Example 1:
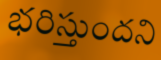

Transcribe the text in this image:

భరిస్తుందని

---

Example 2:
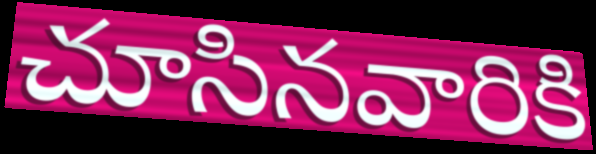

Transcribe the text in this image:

చూసినవారికి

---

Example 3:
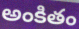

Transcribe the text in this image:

అంకితం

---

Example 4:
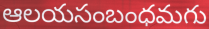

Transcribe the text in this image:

ఆలయసంబంధమగు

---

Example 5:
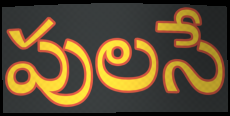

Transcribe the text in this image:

పులసే